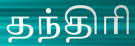
தந்திரி